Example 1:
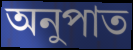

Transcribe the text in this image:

অনুপাত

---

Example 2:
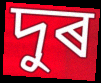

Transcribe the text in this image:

দুৰ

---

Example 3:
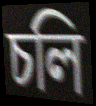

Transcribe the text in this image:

চলি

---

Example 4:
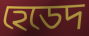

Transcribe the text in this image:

হেডেদ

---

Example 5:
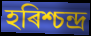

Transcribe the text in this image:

হৰিশ্চন্দ্ৰ